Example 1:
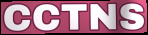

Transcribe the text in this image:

CCTNS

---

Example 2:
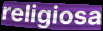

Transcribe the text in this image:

religiosa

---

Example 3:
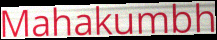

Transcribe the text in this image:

Mahakumbh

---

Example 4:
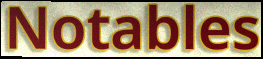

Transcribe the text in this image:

Notables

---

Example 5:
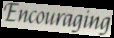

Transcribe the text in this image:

Encouraging